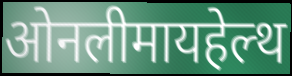
ओनलीमायहेल्थ